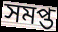
সমপ্ত